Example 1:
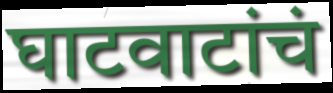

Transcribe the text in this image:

घाटवाटांचं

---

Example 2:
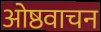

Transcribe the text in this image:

ओष्ठवाचन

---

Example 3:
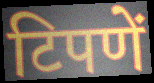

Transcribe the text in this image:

टिपणें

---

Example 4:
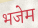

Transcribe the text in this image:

भजेम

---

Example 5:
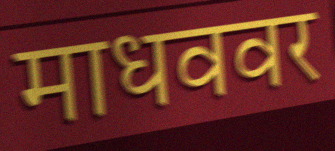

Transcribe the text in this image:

माधववर